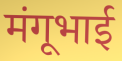
मंगूभाई